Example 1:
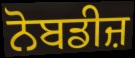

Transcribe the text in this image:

ਨੋਬਡੀਜ਼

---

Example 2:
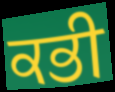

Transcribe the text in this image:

ਕਭੀ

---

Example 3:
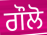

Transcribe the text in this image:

ਗੌਲੋ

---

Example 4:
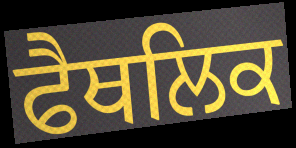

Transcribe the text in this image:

ਫੈਥਲਿਕ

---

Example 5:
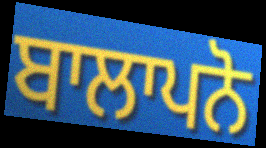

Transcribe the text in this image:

ਬਾਲਾਪਨੋ